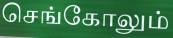
செங்கோலும்